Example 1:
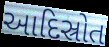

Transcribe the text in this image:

આદિસ્રોત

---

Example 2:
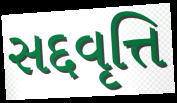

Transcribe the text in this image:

સદ્દવૃત્તિ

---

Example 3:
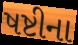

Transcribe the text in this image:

ષષ્ટીના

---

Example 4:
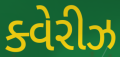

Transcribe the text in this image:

ક્વેરીઝ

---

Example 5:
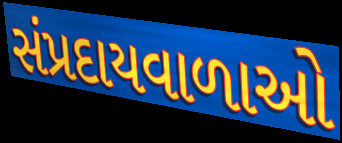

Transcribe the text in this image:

સંપ્રદાયવાળાઓ